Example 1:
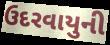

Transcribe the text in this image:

ઉદરવાયુની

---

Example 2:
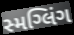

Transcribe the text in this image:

સ્મગ્લિંગ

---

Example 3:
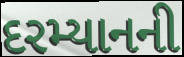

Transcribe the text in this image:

દરમ્યાનની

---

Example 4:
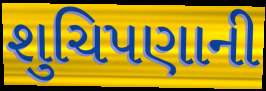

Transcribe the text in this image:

શુચિપણાની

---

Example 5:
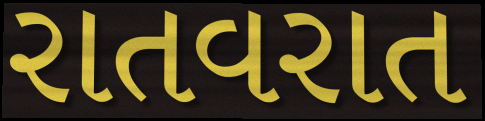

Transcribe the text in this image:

રાતવરાત